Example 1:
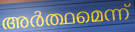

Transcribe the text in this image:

അർത്ഥമെന്ന്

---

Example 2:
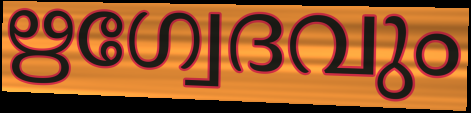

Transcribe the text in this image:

ഋഗ്വേദവും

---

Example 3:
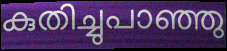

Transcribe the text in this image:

കുതിച്ചുപാഞ്ഞു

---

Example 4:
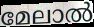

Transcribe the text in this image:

മേലാൽ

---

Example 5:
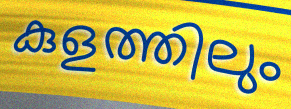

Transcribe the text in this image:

കുളത്തിലും